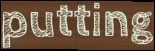
putting